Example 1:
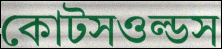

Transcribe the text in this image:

কোটসওল্ডস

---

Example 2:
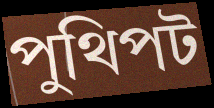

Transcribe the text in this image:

পুথিপট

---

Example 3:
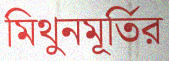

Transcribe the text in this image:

মিথুনমূর্তির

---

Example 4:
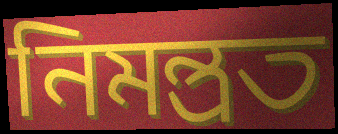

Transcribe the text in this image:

নিমন্ত্রত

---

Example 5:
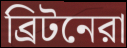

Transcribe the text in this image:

ব্রিটনেরা